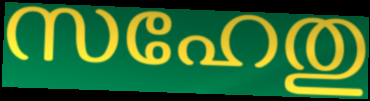
സഹേതു